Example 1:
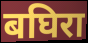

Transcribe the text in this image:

बघिरा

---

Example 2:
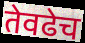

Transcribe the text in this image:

तेवढेच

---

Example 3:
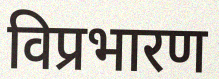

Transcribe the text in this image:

विप्रभारण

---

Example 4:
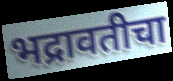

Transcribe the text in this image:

भद्रावतीचा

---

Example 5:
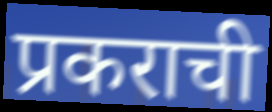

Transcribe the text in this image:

प्रकराची